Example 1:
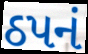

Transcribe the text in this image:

ઠપનં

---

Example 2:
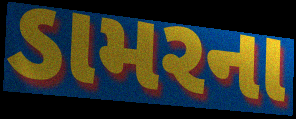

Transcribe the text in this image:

ડામરના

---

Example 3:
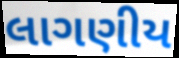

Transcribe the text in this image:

લાગણીય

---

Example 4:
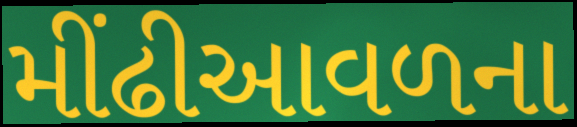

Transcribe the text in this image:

મીંઢીઆવળના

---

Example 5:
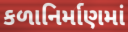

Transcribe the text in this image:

કળાનિર્માણમાં